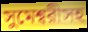
সুমেশ্বরীসহ